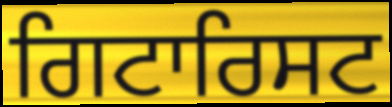
ਗਿਟਾਰਿਸਟ